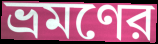
ভ্রমণের